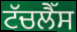
ਟੱਚਲੈੱਸ